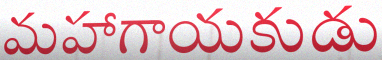
మహాగాయకుడు